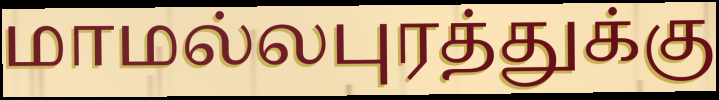
மாமல்லபுரத்துக்கு